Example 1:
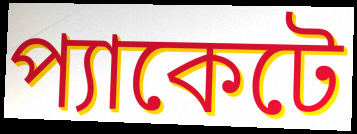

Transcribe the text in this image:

প্যাকেটে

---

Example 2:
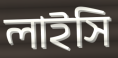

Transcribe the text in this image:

লাইসি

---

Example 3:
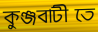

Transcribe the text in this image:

কুঞ্জবাটীতে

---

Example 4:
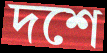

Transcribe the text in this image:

দশে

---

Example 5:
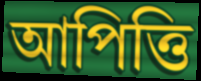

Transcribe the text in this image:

আপিত্তি